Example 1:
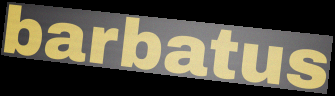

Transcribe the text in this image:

barbatus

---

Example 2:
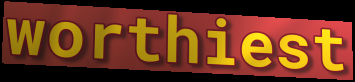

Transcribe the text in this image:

worthiest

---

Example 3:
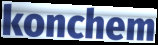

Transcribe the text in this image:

konchem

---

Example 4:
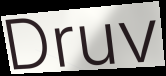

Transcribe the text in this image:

Druv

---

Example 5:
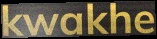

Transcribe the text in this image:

kwakhe